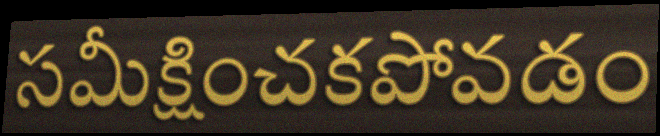
సమీక్షించకపోవడం